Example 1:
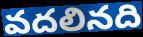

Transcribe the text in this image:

వదలినది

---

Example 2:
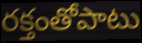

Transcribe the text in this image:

రక్తంతోపాటు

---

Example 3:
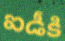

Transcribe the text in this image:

ఐడీకి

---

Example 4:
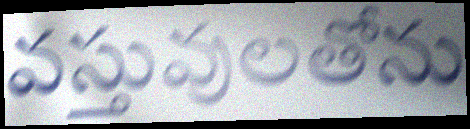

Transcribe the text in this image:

వస్తువులతోను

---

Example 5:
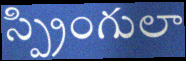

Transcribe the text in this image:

స్ప్రింగులా